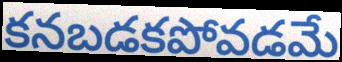
కనబడకపోవడమే